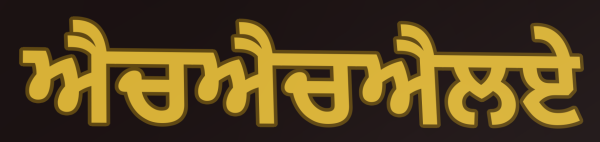
ਐਚਐਚਐਲਏ